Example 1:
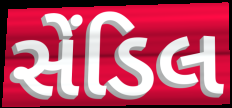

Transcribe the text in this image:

સેંડિલ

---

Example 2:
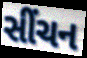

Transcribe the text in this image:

સીંચન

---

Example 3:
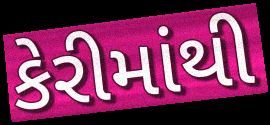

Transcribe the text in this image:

કેરીમાંથી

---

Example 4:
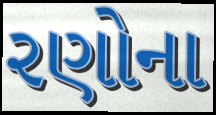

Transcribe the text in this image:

રણોના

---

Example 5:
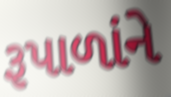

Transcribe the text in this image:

રૂપાળાંને